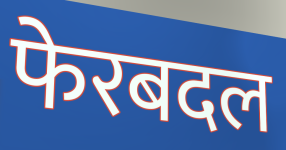
फेरबदल